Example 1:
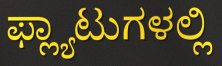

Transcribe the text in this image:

ಫ್ಲ್ಯಾಟುಗಳಲ್ಲಿ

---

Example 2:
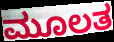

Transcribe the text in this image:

ಮೂಲತ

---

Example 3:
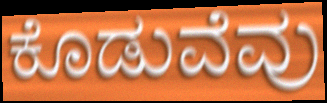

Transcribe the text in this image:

ಕೊಡುವೆವು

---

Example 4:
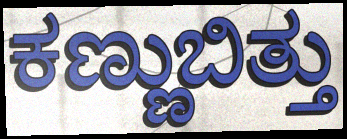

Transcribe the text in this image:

ಕಣ್ಣುಬಿತ್ತು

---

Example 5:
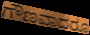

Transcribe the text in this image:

ಗೌಣವಾದರೂ